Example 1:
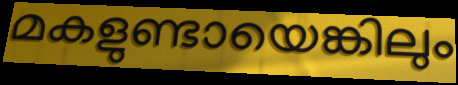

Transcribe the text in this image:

മകളുണ്ടായെങ്കിലും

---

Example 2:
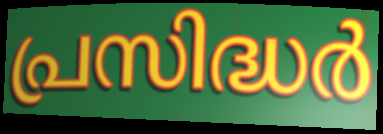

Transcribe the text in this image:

പ്രസിദ്ധർ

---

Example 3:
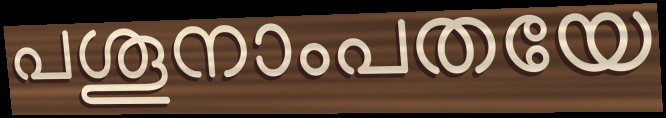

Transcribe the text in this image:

പശൂനാംപതയേ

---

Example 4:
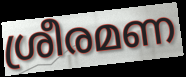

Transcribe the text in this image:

ശ്രീരമണ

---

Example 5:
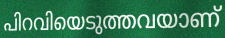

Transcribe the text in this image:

പിറവിയെടുത്തവയാണ്